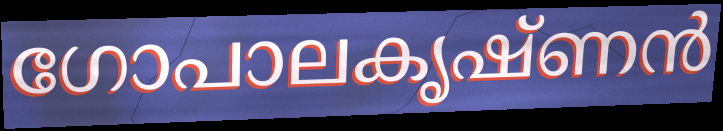
ഗോപാലകൃഷ്ണൻ